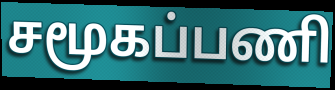
சமூகப்பணி